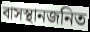
বাসস্থানজনিত